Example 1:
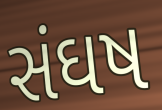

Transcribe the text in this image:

સંઘષ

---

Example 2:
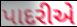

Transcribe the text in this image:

પાદરીએ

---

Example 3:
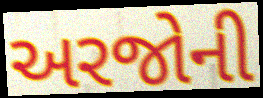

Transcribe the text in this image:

અરજોની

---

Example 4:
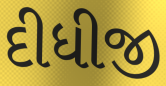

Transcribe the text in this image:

દીધીજી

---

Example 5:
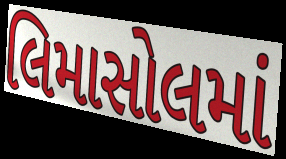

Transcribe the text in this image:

લિમાસોલમાં